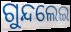
ଗୁନ୍ଦଲେଇ